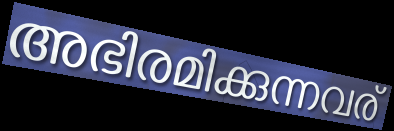
അഭിരമിക്കുന്നവര്